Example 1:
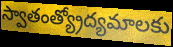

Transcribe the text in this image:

స్వాతంత్య్రోద్యమాలకు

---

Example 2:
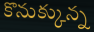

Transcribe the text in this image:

కొనుక్కున్న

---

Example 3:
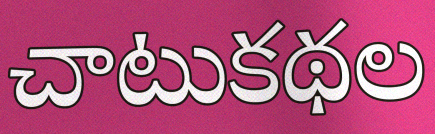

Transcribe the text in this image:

చాటుకథల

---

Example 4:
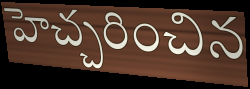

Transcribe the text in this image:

హెచ్చరించిన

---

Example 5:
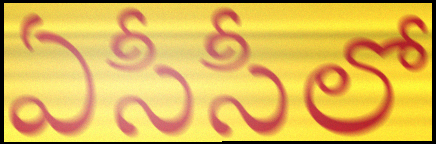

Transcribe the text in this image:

ఏసీసీలో